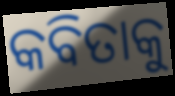
କବିତାକୁ